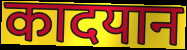
कादयान